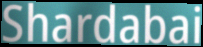
Shardabai